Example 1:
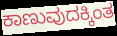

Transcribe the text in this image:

ಕಾಣುವುದಕ್ಕಿಂತ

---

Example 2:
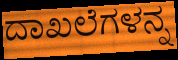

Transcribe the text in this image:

ದಾಖಲೆಗಳನ್ನ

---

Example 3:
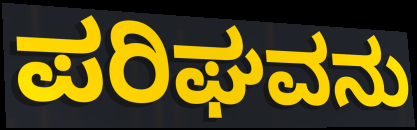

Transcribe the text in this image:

ಪರಿಘವನು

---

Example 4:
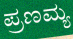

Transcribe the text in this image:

ಪ್ರಣಮ್ಯ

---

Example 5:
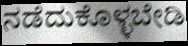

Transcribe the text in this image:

ನಡೆದುಕೊಳ್ಳಬೇಡಿ